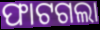
ଫାଟଗଲା